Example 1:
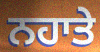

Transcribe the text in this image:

ਨਹਾਤੇ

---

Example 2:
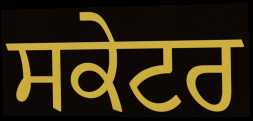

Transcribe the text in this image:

ਸਕੇਟਰ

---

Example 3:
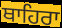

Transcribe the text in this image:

ਥਾਹਿਰਾ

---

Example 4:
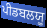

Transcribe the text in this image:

ਪੀਡਬਲਯੂ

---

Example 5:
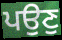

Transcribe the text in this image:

ਪਉਣੁ